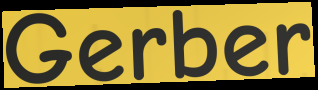
Gerber